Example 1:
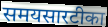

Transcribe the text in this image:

समयसारटीका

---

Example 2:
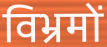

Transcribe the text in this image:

विभ्रमों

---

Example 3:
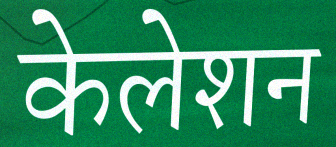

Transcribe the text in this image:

केलेशन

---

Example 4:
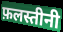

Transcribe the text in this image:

फ़लस्तीनी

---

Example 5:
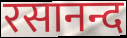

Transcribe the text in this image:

रसानन्द